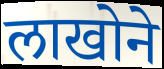
लाखोने